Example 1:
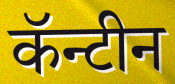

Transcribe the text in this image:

कॅन्टीन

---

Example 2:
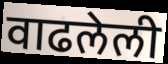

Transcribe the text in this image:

वाढलेली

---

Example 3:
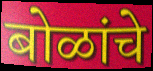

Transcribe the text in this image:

बोळांचे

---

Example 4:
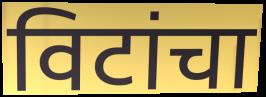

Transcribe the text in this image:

विटांचा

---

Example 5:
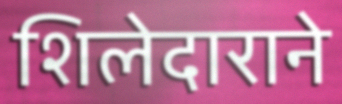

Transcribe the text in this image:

शिलेदाराने